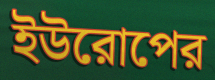
ইউরোপের